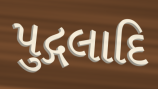
પુદ્ગલાદિ